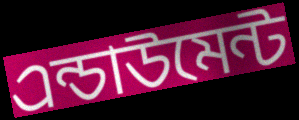
এন্ডাউমেন্ট